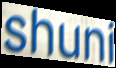
shuni